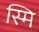
स्मि